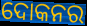
ଦୋକନର